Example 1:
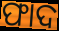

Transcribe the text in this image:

ଫାଦ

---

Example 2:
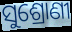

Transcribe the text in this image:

ସୁଶ୍ରୋଣୀ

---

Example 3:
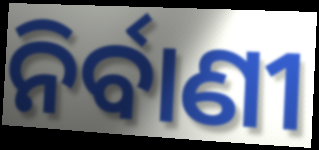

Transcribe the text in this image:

ନିର୍ବାଣୀ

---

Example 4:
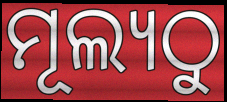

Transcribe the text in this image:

ମୂଲ୍ୟଠୁ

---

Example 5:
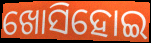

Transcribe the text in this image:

ଖୋସିହୋଇ